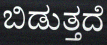
ಬಿಡುತ್ತದೆ